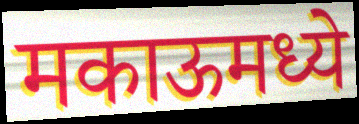
मकाऊमध्ये